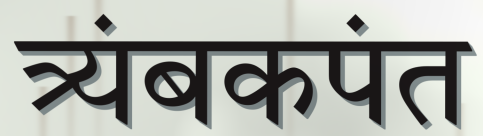
त्र्यंबकपंत